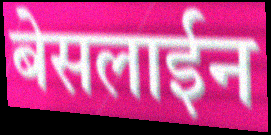
बेसलाईन